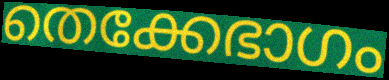
തെക്കേഭാഗം